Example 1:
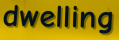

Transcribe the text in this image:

dwelling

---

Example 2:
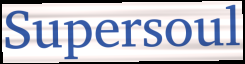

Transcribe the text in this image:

Supersoul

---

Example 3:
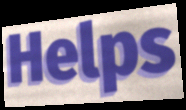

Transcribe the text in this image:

Helps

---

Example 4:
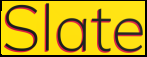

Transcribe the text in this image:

Slate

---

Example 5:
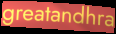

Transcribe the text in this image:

greatandhra